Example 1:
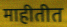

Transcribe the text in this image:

माहीतीत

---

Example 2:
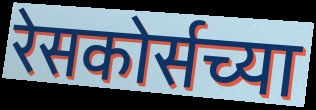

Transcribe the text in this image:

रेसकोर्सच्या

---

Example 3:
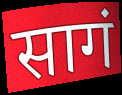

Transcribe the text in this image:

सागं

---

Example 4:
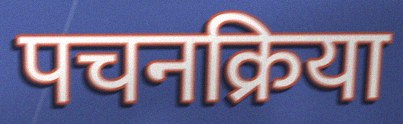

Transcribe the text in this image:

पचनक्रिया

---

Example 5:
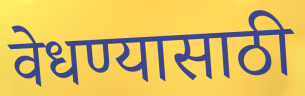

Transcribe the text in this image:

वेधण्यासाठी